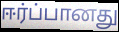
ஈர்ப்பானது